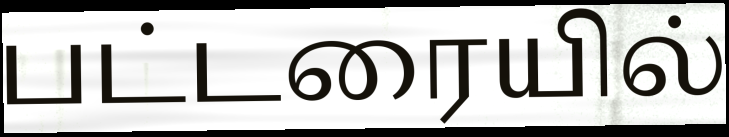
பட்டரையில்